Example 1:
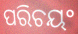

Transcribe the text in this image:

ପରିଚୟଂ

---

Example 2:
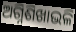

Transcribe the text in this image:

ଅଗ୍ନିଶିଖାଭଳି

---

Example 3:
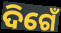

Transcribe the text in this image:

ଦିଗେଁ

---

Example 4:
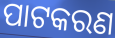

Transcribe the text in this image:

ପାଟକରଣ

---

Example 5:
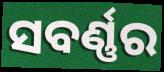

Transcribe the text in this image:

ସବର୍ଣ୍ଣର